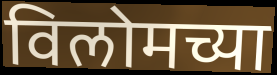
विलोमच्या